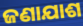
ଜଣାଯାଶ